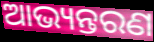
ଆଭ୍ୟନ୍ତରଣ